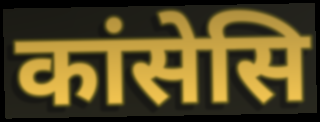
कांसेसि